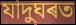
যাদুঘৰত